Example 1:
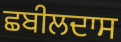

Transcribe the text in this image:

ਛਬੀਲਦਾਸ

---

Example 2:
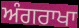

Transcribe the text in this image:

ਅੰਗਰਾਖਾ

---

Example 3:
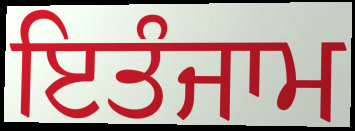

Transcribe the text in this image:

ਇਤੰਜਾਮ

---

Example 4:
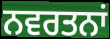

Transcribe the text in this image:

ਨਵਰਤਨਾਂ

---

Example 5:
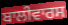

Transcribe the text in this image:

ਬਾਲੀਵਾਰਸ